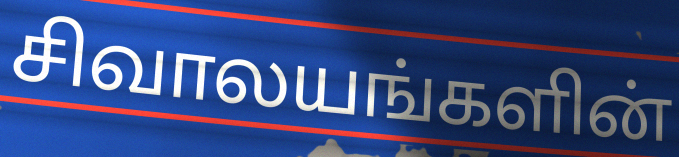
சிவாலயங்களின்